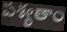
పశ్యతాం